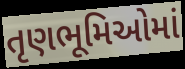
તૃણભૂમિઓમાં